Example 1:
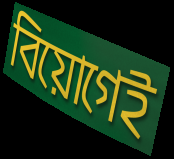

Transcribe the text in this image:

বিয়োগেই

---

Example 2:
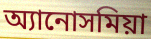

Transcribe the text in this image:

অ্যানোসমিয়া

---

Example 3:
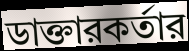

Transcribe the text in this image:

ডাক্তারকর্তার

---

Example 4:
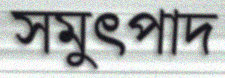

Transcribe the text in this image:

সমুৎপাদ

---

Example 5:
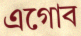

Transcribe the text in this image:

এগোব